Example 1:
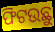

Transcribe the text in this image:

ଫିଟଉଛୁ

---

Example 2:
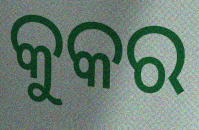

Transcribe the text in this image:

କୁକର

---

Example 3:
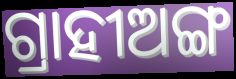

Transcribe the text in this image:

ଗ୍ରାହୀଅଙ୍ଗ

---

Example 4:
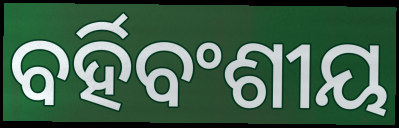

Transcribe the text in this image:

ବର୍ହିବଂଶୀୟ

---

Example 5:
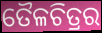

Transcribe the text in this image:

ତୈଳଚିତ୍ରର